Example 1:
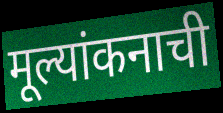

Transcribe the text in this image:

मूल्यांकनाची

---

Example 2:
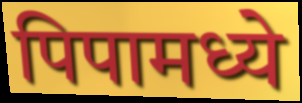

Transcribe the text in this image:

पिपामध्ये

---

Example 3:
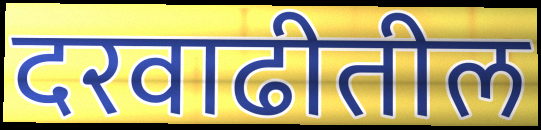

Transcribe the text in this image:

दरवाढीतील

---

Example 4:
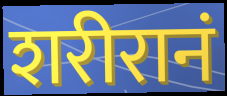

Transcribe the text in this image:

शरीरानं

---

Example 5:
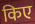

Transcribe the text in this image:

किए